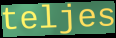
teljes